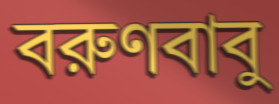
বরুণবাবু